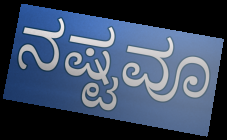
ನಷ್ಟವೂ